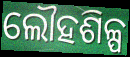
ଲୌହଶିଳ୍ପ